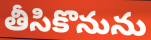
తీసికొనును